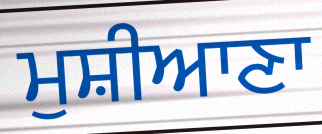
ਮੁਸ਼ੀਆਣਾ